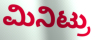
ಮಿನಿಟ್ರು